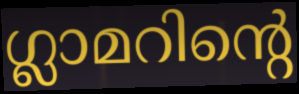
ഗ്ലാമറിന്റെ